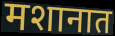
मशानात